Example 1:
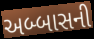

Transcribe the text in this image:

અબ્બાસની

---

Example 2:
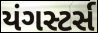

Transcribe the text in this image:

યંગસ્ટર્સ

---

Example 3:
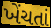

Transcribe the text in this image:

ખેંચતાં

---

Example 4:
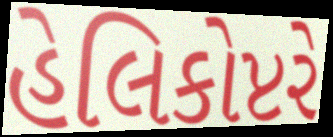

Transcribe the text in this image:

હેલિકોપ્ટરે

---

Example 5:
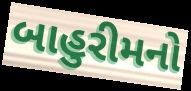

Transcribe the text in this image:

બાહુરીમનો